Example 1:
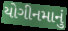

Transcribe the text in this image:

યોગીનમાનું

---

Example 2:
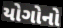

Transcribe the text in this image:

યોગોનો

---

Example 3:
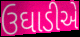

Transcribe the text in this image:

ઉઘાડીએ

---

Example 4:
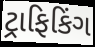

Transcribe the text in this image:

ટ્રાફિકિંગ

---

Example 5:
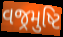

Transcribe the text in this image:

વજ્રમુષ્ટિ